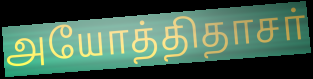
அயோத்திதாசர்